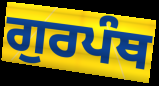
ਗੁਰਪੰਥ